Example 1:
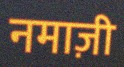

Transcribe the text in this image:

नमाज़ी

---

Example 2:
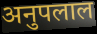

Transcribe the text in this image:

अनुपलाल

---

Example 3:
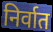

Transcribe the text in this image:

निर्वात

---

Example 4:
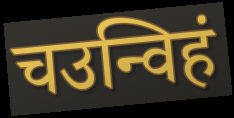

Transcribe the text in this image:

चउन्विहं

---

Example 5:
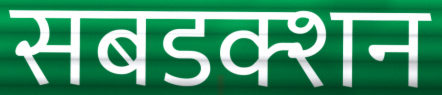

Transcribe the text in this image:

सबडक्शन